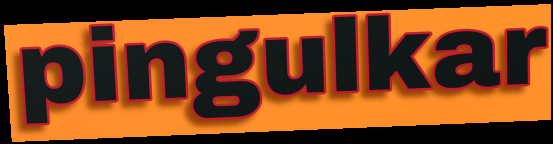
pingulkar